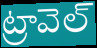
ట్రావెల్